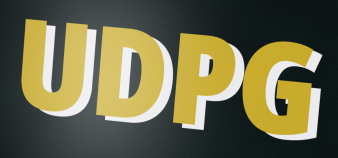
UDPG